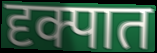
दृक्पात